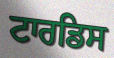
ਟਾਰਡਿਸ